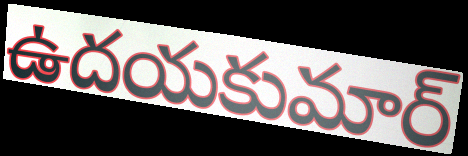
ఉదయకుమార్